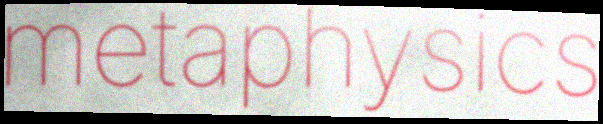
metaphysics